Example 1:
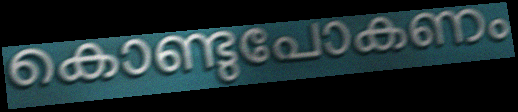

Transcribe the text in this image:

കൊണ്ടുപോകണം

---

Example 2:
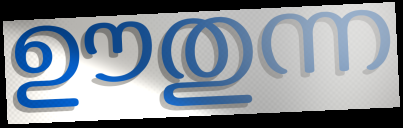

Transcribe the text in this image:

ഊതുന്ന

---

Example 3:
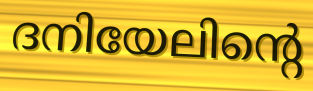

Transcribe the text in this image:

ദനിയേലിന്റെ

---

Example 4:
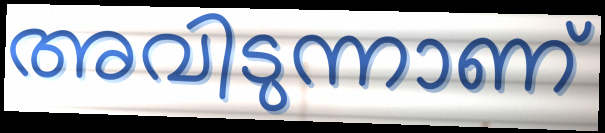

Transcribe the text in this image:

അവിടുന്നാണ്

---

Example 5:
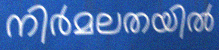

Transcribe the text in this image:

നിർമലതയിൽ